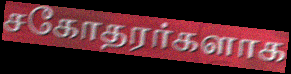
சகோதரர்களாக